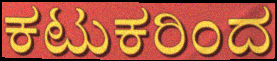
ಕಟುಕರಿಂದ